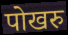
पोखरु